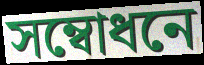
সম্বোধনে